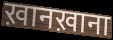
ख़ानख़ाना